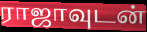
ராஜாவுடன்